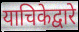
याचिकेद्वारे